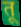
तू